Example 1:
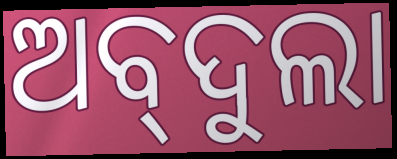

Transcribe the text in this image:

ଅବ୍‌ଦୁଲା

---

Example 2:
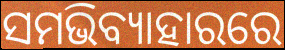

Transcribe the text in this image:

ସମଭିବ୍ୟାହାରରେ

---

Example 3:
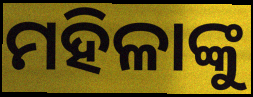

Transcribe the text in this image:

ମହିଳାଙ୍କୁ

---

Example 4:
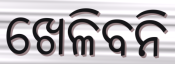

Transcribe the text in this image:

ଖେଳିବନି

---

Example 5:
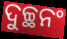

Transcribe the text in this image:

ଦୁଚ୍ଛନଂ